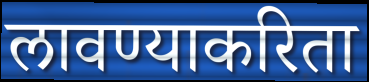
लावण्याकरिता